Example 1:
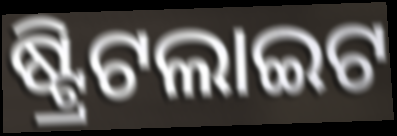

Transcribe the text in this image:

ଷ୍ଟ୍ରିଟଲାଇଟ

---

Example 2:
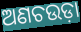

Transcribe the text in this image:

ଅଣଚଉଡ଼ା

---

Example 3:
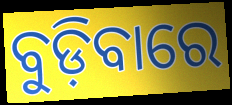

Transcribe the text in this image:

ବୁଡ଼ିବାରେ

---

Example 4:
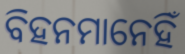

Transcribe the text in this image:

ବିହନମାନେହିଁ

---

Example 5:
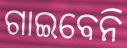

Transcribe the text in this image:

ଗାଇବେନି